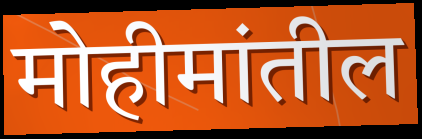
मोहीमांतील